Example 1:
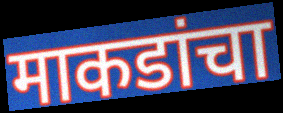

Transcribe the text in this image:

माकडांचा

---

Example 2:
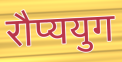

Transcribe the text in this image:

रौप्ययुग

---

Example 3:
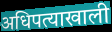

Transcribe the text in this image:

अधिपत्‍याखाली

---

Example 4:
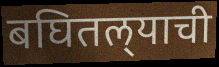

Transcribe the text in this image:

बघितल्याची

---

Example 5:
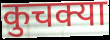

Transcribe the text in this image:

कुचक्या